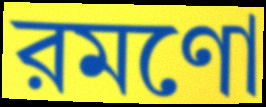
রমণো